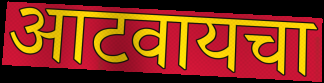
आटवायचा